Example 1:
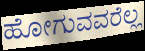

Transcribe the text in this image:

ಹೋಗುವವರೆಲ್ಲ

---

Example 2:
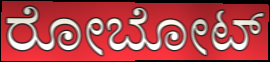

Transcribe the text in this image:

ರೋಬೋಟ್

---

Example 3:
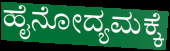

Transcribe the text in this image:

ಹೈನೋದ್ಯಮಕ್ಕೆ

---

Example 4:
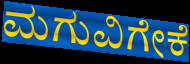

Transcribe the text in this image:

ಮಗುವಿಗೇಕೆ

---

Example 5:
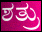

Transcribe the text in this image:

ಶತ್ರು